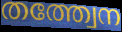
തത്ത്വേന